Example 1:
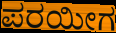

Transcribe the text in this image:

ಪರಯೀಗ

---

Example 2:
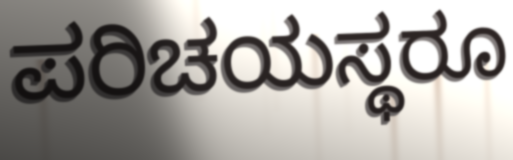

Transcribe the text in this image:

ಪರಿಚಯಸ್ಥರೂ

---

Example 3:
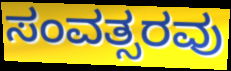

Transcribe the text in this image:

ಸಂವತ್ಸರವು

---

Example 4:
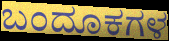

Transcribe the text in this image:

ಬಂದೂಕಗಳ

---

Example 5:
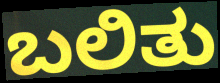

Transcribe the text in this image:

ಬಲಿತು